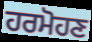
ਹਰਮੋਹਣ